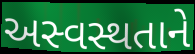
અસ્વસ્થતાને